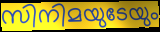
സിനിമയുടേയും